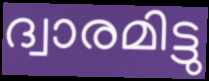
ദ്വാരമിട്ടു